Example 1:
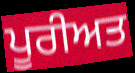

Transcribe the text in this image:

ਪੂਰੀਅਤ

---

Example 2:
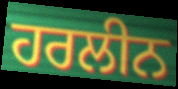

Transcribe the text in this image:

ਹਰਲੀਨ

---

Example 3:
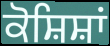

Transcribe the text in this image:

ਕੋਸ਼ਿਸ਼ਾਂ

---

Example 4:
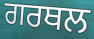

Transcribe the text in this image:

ਗਰਥਲ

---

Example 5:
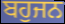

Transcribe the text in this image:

ਬਹੁਜਨ